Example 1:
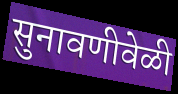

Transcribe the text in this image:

सुनावणीवेळी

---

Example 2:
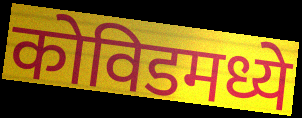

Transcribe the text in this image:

कोविडमध्ये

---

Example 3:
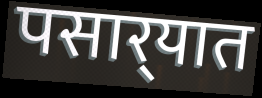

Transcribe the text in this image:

पसार्‍यात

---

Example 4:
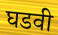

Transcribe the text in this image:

घडवी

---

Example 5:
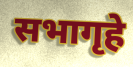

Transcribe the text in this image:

सभागृहे